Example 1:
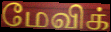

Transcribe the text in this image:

மேவிக்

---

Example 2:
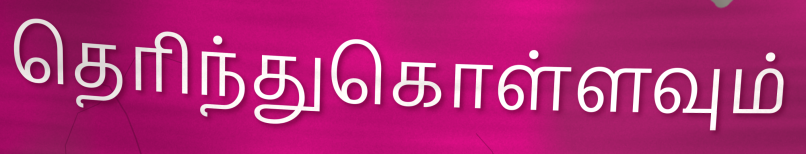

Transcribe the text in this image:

தெரிந்துகொள்ளவும்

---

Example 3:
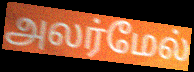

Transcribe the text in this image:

அலர்மேல்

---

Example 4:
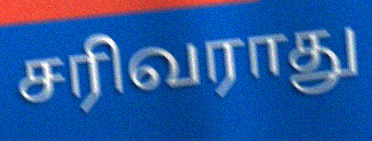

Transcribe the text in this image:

சரிவராது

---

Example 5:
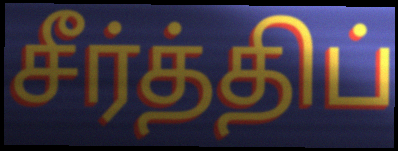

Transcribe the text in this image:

சீர்த்திப்